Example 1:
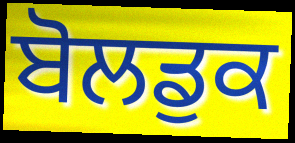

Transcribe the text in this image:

ਬੋਲਡੁਕ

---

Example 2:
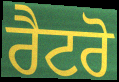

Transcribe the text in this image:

ਰੈਟਰੋ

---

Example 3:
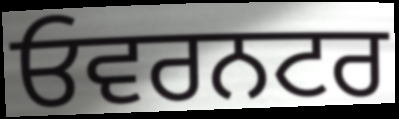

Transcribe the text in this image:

ਓਵਰਨਟਰ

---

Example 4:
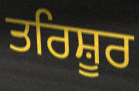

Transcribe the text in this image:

ਤਰਿਸ਼ੂਰ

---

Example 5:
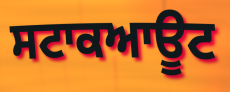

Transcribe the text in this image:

ਸਟਾਕਆਊਟ